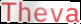
Theva